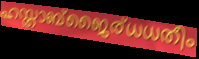
ഹസ്താബ്ജൈര്ധധതീം